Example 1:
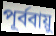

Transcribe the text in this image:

পূর্ববায়ু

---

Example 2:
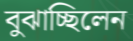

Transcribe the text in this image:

বুঝাচ্ছিলেন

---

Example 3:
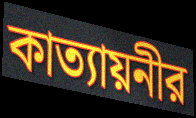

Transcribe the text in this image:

কাত্যায়নীর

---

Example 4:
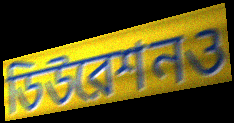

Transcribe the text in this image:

ডিউরেশনও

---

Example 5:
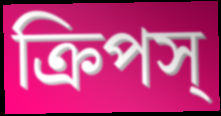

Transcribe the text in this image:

ক্রিপস্